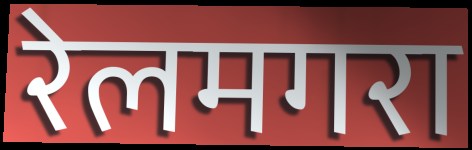
रेलमगरा